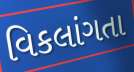
વિકલાંગતા